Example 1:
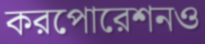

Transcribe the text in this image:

করপোরেশনও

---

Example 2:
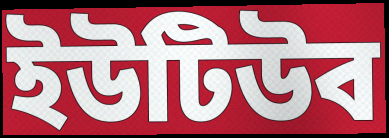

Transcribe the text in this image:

ইউটিউব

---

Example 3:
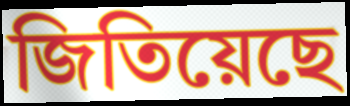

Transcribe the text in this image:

জিতিয়েছে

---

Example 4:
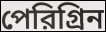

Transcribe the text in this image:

পেরিগ্রিন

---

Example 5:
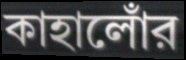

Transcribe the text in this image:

কাহালোঁর